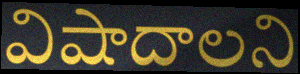
విషాదాలని